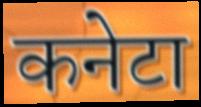
कनेटा